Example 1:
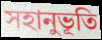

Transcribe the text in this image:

সহানুভূতি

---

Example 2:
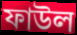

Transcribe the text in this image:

ফাউল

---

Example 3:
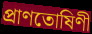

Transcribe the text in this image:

প্ৰাণতোষিণী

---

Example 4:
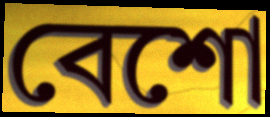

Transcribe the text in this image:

বেশো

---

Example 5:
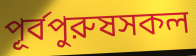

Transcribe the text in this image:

পূৰ্বপুৰুষসকল